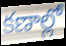
కణాల్లో